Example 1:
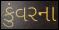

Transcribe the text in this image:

કુંવરના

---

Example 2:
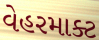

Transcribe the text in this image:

વેહરમાક્ટ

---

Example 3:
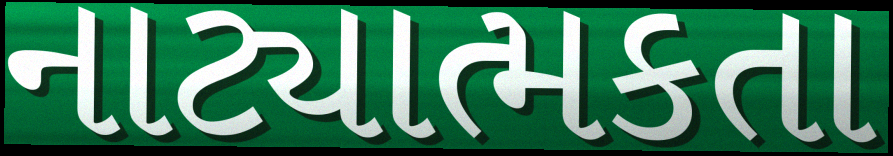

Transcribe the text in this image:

નાટ્યાત્મકતા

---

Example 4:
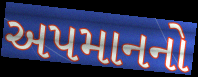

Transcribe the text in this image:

અપમાનનો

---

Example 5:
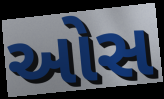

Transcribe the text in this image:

ઓસ